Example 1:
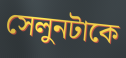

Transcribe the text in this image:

সেলুনটাকে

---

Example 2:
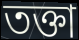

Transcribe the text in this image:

তক্তা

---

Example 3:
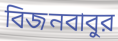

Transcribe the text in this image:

বিজনবাবুর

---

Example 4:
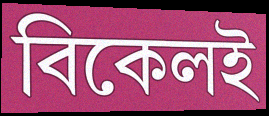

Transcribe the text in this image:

বিকেলই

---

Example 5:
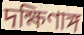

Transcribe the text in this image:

দক্ষিণাঙ্গ